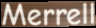
Merrell